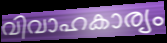
വിവാഹകാര്യം